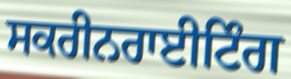
ਸਕਰੀਨਰਾਈਟਿੰਗ